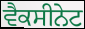
ਵੈਕਸੀਨੇਟ